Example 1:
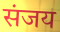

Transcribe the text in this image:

संजय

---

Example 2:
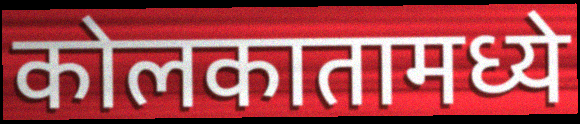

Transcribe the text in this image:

कोलकातामध्ये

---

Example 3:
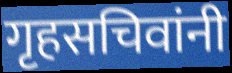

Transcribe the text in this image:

गृहसचिवांनी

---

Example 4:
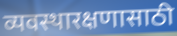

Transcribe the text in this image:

व्यवस्थारक्षणासाठी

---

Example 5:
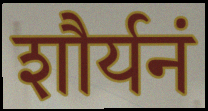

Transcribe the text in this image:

शौर्यनं